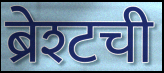
ब्रेश्टची